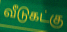
வீடுகட்கு